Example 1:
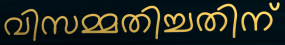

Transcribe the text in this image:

വിസമ്മതിച്ചതിന്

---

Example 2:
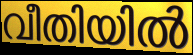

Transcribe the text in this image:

വീതിയിൽ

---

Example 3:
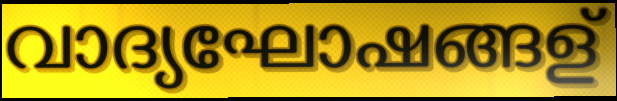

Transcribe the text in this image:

വാദ്യഘോഷങ്ങള്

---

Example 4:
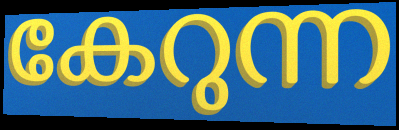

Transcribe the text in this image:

കേറുന്ന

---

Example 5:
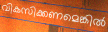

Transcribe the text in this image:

വികസിക്കണമെങ്കിൽ